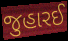
જુહારઈ